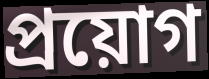
প্রয়োগ